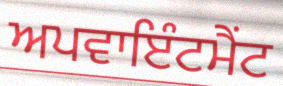
ਅਪਵਾਇੰਟਮੈਂਟ